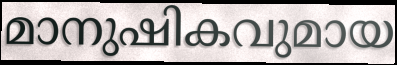
മാനുഷികവുമായ